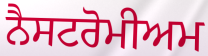
ਨੈਸਟਰੋਮੀਅਮ